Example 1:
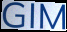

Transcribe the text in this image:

GIM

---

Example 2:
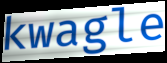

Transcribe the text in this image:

kwagle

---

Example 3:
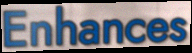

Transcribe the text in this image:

Enhances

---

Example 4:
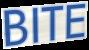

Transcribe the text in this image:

BITE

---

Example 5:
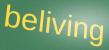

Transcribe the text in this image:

beliving